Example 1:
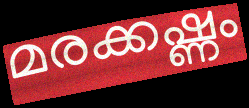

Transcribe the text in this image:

മരക്കഷ്ണം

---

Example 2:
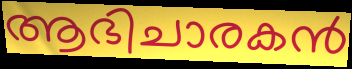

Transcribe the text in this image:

ആഭിചാരകൻ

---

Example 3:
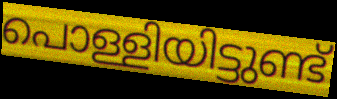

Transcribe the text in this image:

പൊള്ളിയിട്ടുണ്ട്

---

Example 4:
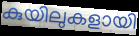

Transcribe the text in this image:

കുയിലുകളായി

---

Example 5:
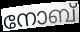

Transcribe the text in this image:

നോബ്